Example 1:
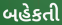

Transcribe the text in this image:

બહેકતી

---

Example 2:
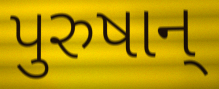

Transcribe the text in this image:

પુરુષાન્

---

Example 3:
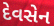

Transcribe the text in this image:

દેવસેન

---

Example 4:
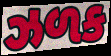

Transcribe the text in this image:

ઝળક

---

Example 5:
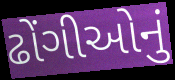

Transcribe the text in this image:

ઢોંગીઓનું